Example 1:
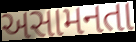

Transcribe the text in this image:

અસામનતા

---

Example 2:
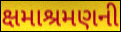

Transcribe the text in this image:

ક્ષમાશ્રમણની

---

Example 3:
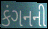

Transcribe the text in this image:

કંગનની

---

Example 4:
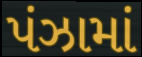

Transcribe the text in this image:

પંઝામાં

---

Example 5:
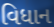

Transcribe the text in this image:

વિધાન